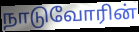
நாடுவோரின்